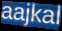
aajkal